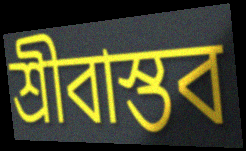
শ্রীবাস্তব